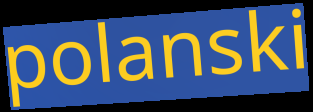
polanski